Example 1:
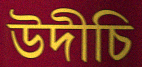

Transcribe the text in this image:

উদীচি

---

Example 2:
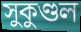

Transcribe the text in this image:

সুকুণ্ডল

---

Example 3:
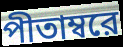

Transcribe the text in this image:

পীতাম্বরে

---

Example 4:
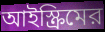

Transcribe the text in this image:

আইস্ক্রিমের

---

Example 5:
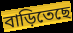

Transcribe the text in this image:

বাড়িতেছে